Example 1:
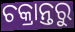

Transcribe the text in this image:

ଚକ୍ରାନ୍ତରୁ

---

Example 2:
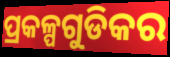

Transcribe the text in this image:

ପ୍ରକଳ୍ପଗୁଡିକର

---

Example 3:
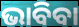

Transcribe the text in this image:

ଭାବିବା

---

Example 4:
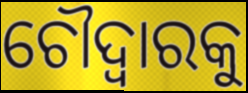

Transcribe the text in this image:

ଚୌଦ୍ୱାରକୁ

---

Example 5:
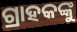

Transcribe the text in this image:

ଗ୍ରାହକଙ୍କୁ